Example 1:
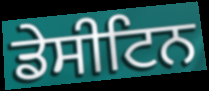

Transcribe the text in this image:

ਡੇਸੀਟਿਨ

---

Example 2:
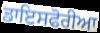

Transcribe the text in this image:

ਡਾਇਸਫੋਰੀਆ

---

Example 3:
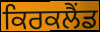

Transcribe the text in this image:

ਕਿਰਕਲੈਂਡ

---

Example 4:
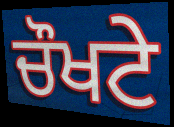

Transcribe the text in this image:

ਚੌਖਟੇ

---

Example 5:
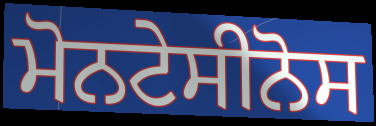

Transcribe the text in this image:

ਮੋਨਟੇਸੀਨੋਸ